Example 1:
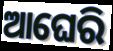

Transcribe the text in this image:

ଆଘେରି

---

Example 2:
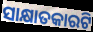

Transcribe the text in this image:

ସାକ୍ଷାତକାରଟି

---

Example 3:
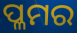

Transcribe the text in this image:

ପ୍ଳମର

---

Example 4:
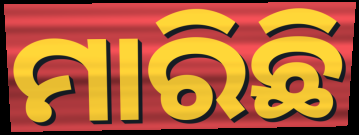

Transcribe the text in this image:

ମାରିଛି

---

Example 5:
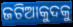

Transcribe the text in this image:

ଜଟିଆକୁଦକୁ